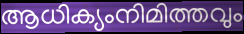
ആധിക്യംനിമിത്തവും